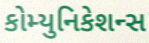
કોમ્યુનિકેશન્સ